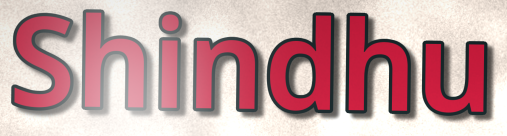
Shindhu